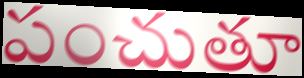
పంచుతూ